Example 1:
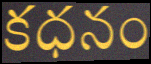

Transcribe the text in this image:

కధనం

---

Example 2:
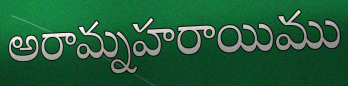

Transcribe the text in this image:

అరామ్నహరాయిము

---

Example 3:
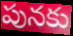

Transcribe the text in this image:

పునకు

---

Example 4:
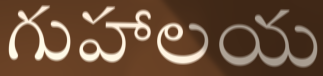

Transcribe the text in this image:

గుహాలయ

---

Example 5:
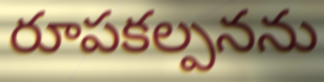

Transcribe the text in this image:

రూపకల్పనను